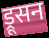
ड्रूसन